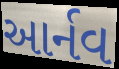
આર્નવ